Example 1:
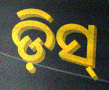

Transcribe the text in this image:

ଡ଼ିସ୍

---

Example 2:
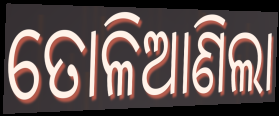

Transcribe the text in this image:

ତୋଳିଆଣିଲା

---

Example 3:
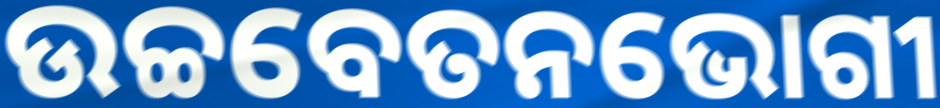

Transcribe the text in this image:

ଉଚ୍ଚବେତନଭୋଗୀ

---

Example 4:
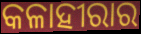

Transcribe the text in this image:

କଳାହୀରାର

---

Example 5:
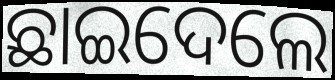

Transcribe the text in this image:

ଛାଇଦେଲେ